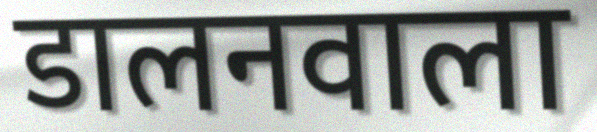
डालनवाला